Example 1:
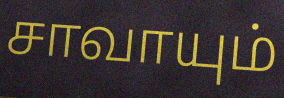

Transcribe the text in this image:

சாவாயும்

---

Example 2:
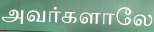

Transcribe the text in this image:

அவர்களாலே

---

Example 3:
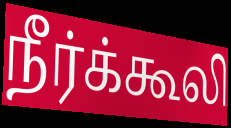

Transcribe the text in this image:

நீர்க்கூலி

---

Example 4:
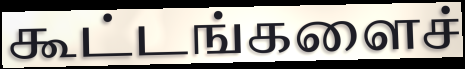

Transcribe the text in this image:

கூட்டங்களைச்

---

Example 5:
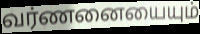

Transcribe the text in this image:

வர்ணனையையும்